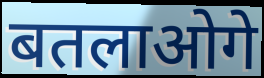
बतलाओगे